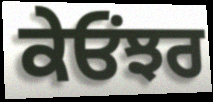
ਕੇਓਂਝਰ